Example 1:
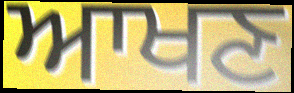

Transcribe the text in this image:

ਆਖਣ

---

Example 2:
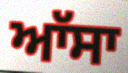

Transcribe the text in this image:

ਆੱਸਾ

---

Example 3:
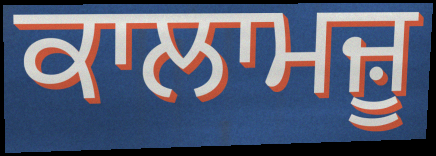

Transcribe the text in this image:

ਕਾਲਾਮਜ਼ੂ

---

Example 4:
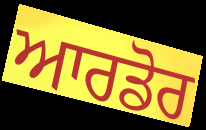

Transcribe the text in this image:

ਆਰਡੋਰ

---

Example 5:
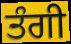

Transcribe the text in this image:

ਤੰਗੀ